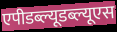
एपीडब्ल्यूडब्ल्यूएस